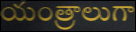
యంత్రాలుగా